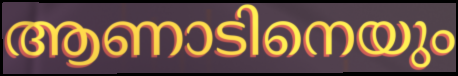
ആണാടിനെയും